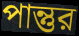
পান্তুর